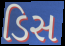
ડિસ